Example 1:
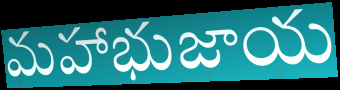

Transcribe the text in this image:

మహాభుజాయ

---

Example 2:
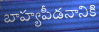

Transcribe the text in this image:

బాహ్యపీడనానికి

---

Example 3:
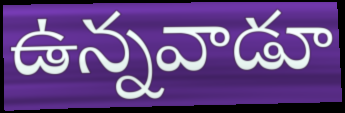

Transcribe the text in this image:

ఉన్నవాడూ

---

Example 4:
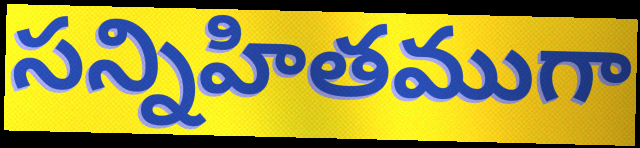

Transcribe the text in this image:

సన్నిహితముగా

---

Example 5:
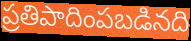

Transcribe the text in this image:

ప్రతిపాదింపబడినది